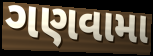
ગણવામા